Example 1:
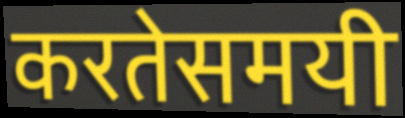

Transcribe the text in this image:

करतेसमयी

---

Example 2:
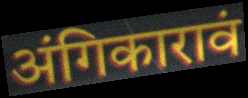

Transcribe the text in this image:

अंगिकारावं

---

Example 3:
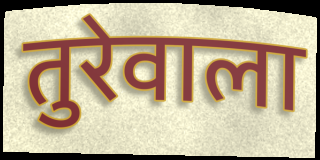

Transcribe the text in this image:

तुरेवाला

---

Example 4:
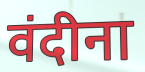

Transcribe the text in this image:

वंदीना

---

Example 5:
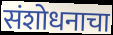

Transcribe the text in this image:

संशोधनाचा